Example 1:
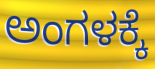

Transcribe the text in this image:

ಅಂಗಳಕ್ಕೆ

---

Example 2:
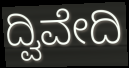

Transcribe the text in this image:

ದ್ವಿವೇದಿ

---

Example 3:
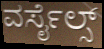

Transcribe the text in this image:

ವರ್ಸೈಲ್ಸ್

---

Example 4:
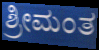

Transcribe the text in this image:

ಶ್ರೀಮಂತ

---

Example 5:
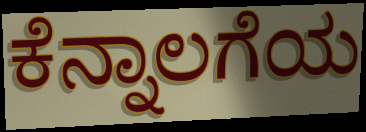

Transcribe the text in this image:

ಕೆನ್ನಾಲಗೆಯ